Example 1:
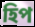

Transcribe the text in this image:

হিপ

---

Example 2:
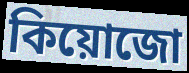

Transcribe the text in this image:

কিয়োজো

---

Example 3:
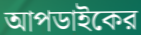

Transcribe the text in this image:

আপডাইকের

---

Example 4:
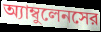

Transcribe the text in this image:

অ্যাম্বুলেনসের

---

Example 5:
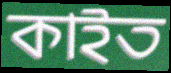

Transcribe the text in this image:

কাইত